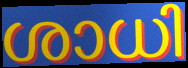
ശാധി